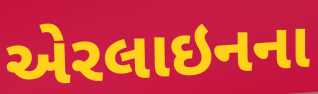
એરલાઇનના